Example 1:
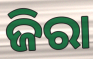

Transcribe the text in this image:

ଜିରା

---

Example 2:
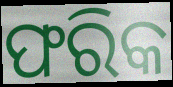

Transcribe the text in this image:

ଫରିକ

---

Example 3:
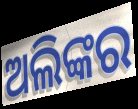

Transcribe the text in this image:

ଅଲିଙ୍କର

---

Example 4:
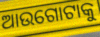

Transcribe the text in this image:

ଆଉଗୋଟାକୁ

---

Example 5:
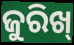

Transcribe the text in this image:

ଜୁରିଖ୍